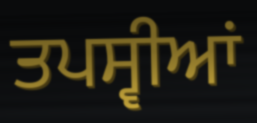
ਤਪਸ੍ਵੀਆਂ